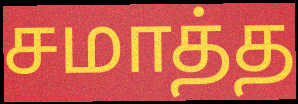
சமாத்த